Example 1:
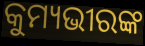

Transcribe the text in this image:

କୁମ୍ୟଭୀରଙ୍କ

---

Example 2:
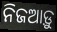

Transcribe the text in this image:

ନିଜଆଡ଼ୁ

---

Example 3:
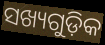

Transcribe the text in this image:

ସଖ୍ୟଗୁଡ଼ିକ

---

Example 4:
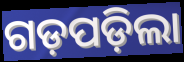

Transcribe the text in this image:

ଗଡ଼ପଡ଼ିଲା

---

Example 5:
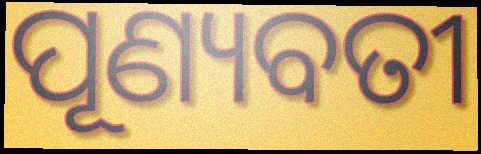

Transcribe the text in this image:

ପୂଣ୍ୟବତୀ